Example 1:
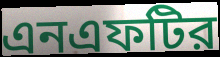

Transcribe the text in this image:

এনএফটির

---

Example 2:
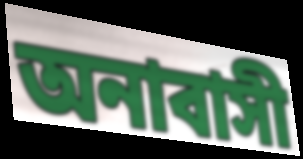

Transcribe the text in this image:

অনাবাসী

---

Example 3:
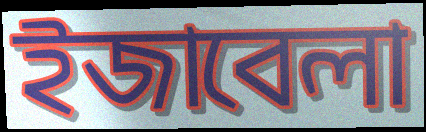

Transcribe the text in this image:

ইজাবেলা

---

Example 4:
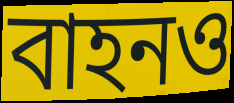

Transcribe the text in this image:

বাহনও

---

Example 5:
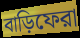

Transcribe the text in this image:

বাড়িফেরা